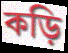
কড়ি